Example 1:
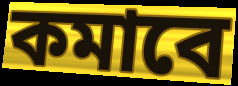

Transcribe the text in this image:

কমাবে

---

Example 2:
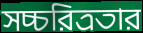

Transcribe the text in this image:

সচ্চরিত্রতার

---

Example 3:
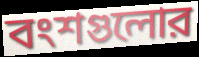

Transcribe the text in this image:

বংশগুলোর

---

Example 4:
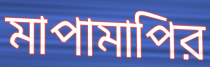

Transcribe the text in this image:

মাপামাপির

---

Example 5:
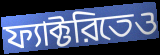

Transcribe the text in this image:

ফ্যাক্টরিতেও